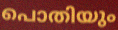
പൊതിയും